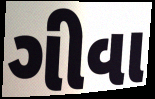
ગીવા